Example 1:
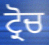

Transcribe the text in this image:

ਟ੍ਰੋਚ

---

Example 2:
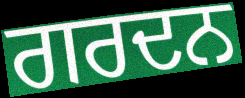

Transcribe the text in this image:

ਗਰਦਨ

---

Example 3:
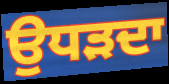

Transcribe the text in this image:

ਉਧੜਦਾ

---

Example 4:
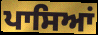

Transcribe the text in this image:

ਪਾਸਿਆਂ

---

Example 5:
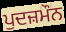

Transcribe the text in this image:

ਪੁਦਜ਼ਮੌਨ